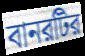
বানরটির